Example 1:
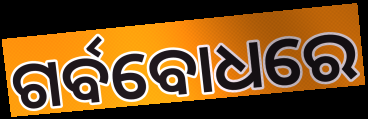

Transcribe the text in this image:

ଗର୍ବବୋଧରେ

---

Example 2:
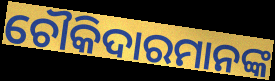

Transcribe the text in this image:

ଚୌକିଦାରମାନଙ୍କ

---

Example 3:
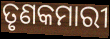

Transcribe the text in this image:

ତୃଣକମାରୀ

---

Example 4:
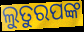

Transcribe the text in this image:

ଲୁତୁରପଙ୍କ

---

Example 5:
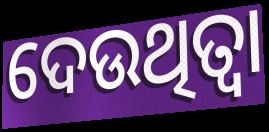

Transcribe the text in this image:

ଦେଉଥିତ୍ବା